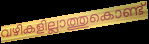
വഴികളില്ലാത്തുകൊണ്ട്